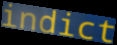
indict